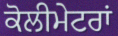
ਕੋਲੀਮੇਟਰਾਂ